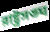
রাষ্ট্রসঙ্ঘ